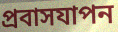
প্রবাসযাপন